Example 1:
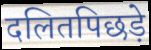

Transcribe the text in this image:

दलितपिछड़े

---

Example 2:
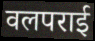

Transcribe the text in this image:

वलपराई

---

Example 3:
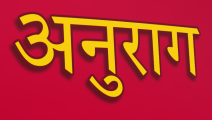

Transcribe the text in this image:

अनुराग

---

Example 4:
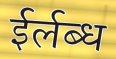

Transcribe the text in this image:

ईर्लब्ध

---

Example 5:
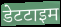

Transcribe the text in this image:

डेटटाइम